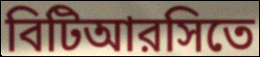
বিটিআরসিতে